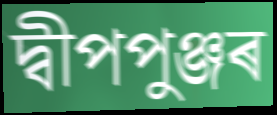
দ্বীপপুঞ্জৰ